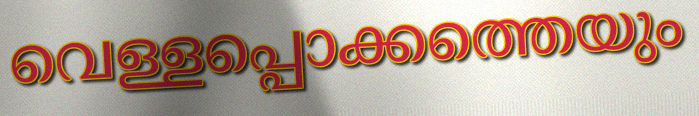
വെള്ളപ്പൊക്കത്തെയും